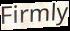
Firmly